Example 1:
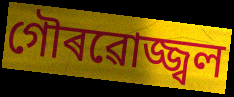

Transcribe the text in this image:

গৌৰৱোজ্জ্বল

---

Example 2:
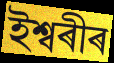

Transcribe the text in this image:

ইশ্বৰীৰ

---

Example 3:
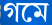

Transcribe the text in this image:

গমে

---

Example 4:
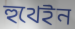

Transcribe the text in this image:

হুথেইন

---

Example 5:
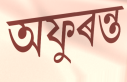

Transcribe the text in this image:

অফুৰন্ত